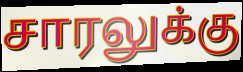
சாரலுக்கு